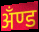
अँण्ड